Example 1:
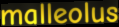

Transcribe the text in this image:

malleolus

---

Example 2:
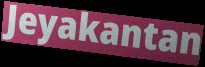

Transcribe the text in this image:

Jeyakantan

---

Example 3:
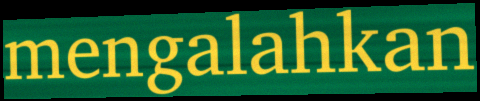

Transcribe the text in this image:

mengalahkan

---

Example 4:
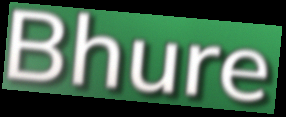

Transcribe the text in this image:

Bhure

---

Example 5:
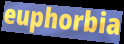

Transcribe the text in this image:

euphorbia